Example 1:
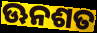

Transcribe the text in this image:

ଊନଶତ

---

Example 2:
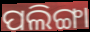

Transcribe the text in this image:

ପଲିଙ୍ଗା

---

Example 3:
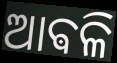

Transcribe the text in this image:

ଆଵଳି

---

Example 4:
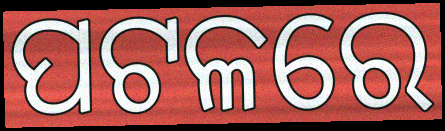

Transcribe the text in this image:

ପଟଳରେ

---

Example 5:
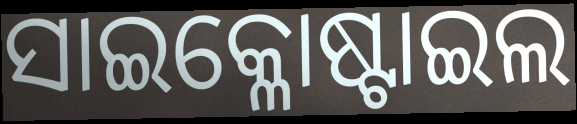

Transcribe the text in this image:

ସାଇକ୍ଳୋଷ୍ଟାଇଲ